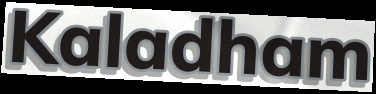
Kaladham